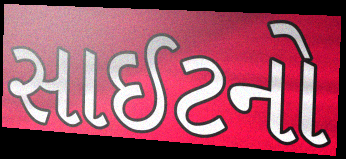
સાઈટનો